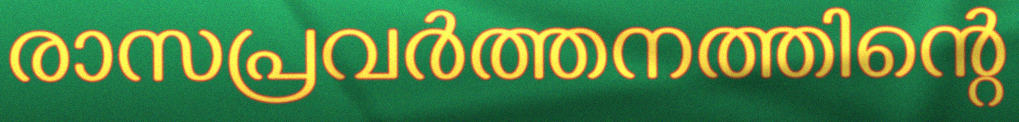
രാസപ്രവർത്തനത്തിന്റെ